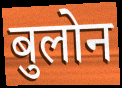
बुलोन